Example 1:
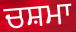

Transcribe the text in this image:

ਚਸ਼ਮਾ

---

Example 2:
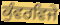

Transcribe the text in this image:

ਕੁੰਵਰਵਿਜੇ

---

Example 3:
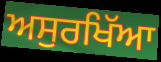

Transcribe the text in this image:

ਅਸੁਰਖਿੱਆ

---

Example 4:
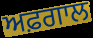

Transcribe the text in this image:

ਅਫ਼ਗਾਲ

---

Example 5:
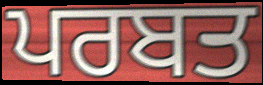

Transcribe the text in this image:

ਪਰਬਤ